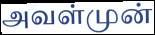
அவள்முன்